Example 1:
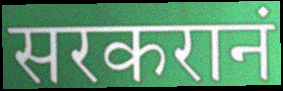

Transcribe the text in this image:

सरकरानं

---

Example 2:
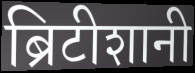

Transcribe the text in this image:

ब्रिटीशानी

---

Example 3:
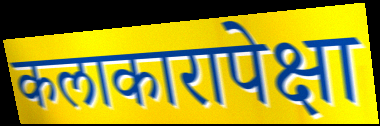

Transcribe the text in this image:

कलाकारापेक्षा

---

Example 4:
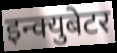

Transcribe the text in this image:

इन्क्‍युबेटर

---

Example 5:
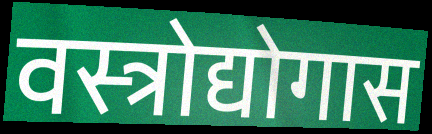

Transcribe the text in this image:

वस्त्रोद्योगास